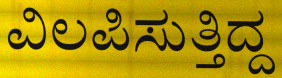
ವಿಲಪಿಸುತ್ತಿದ್ದ